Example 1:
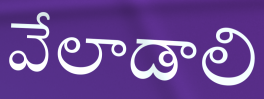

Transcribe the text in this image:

వేలాడాలి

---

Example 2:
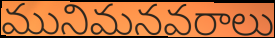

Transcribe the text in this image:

మునిమనవరాలు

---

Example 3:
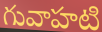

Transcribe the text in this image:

గువాహటి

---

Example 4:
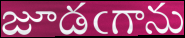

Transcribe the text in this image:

జూడఁగాను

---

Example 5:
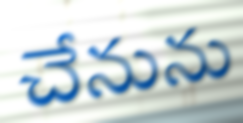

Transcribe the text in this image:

చేనును